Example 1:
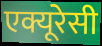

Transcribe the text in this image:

एक्यूरेसी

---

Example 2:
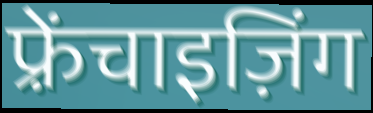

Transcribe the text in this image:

फ़्रेंचाइज़िंग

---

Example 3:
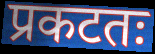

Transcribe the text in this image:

प्रकटतः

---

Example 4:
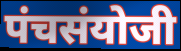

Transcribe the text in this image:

पंचसंयोजी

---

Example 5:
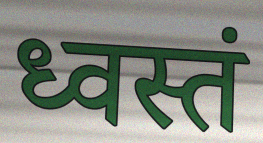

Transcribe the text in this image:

ध्वस्तं